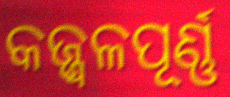
କଜ୍ଜ୍ୱଳପୂର୍ଣ୍ଣ